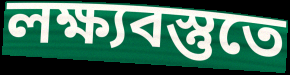
লক্ষ্যবস্তুতে